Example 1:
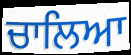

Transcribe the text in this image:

ਚਾਲਿਆ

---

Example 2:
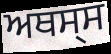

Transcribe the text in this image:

ਅਥਸ੍ਸ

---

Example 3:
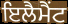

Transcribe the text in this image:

ਇਲੈਮੈਂਟ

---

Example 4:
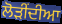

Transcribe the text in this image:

ਲੋੜੀਂਦੀਆ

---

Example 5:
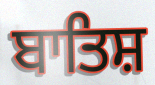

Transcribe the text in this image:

ਬਾਤਿਸ਼